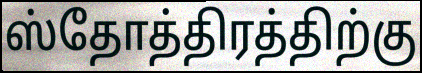
ஸ்தோத்திரத்திற்கு